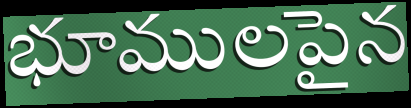
భూములపైన